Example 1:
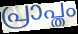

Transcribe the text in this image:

പ്രാപ്തം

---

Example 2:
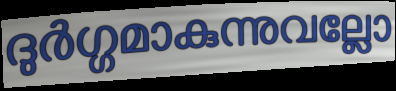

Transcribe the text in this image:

ദുർഗ്ഗമാകുന്നുവല്ലോ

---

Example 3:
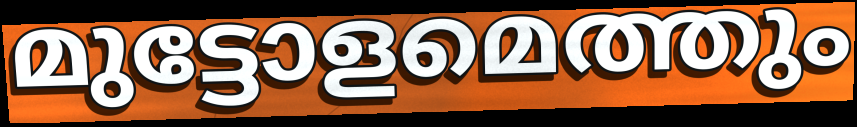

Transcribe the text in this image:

മുട്ടോളമെത്തും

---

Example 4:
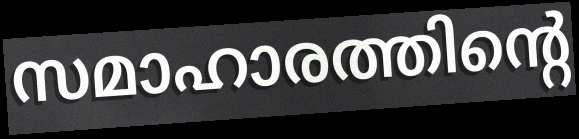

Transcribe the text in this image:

സമാഹാരത്തിന്റെ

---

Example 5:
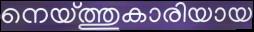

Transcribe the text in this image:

നെയ്ത്തുകാരിയായ